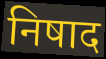
निषाद